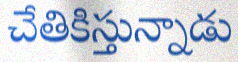
చేతికిస్తున్నాడు